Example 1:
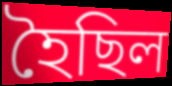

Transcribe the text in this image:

হৈছিল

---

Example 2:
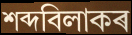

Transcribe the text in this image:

শব্দবিলাকৰ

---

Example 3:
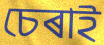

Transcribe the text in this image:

চেৰাই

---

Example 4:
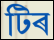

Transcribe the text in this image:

টিৰ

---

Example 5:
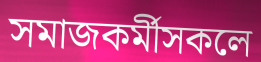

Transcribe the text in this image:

সমাজকৰ্মীসকলে